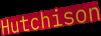
Hutchison